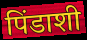
पिंडाशी